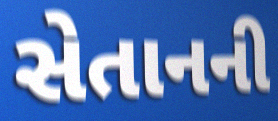
સેતાનની